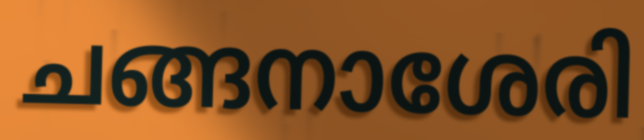
ചങ്ങനാശേരി